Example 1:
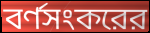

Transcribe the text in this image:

বর্ণসংকরের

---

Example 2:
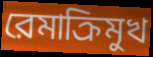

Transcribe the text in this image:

রেমাক্রিমুখ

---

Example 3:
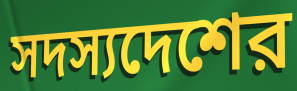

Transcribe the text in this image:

সদস্যদেশের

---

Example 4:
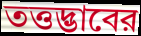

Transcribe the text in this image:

তত্তদ্ভাবের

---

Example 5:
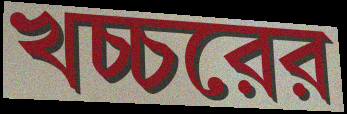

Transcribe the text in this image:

খচ্চরের